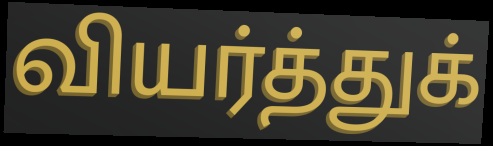
வியர்த்துக்